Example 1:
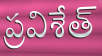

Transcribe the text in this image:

ప్రవిశేత్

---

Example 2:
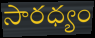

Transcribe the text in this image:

సారధ్యం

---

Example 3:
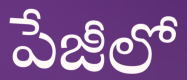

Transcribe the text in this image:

పేజీలో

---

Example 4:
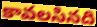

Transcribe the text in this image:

కావలసినది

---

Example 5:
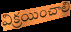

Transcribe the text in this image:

విక్రయించాలి